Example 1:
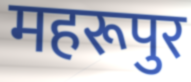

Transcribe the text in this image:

महरूपुर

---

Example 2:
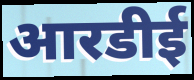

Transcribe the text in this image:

आरडीई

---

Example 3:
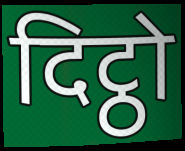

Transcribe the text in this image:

दिट्ठो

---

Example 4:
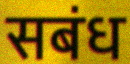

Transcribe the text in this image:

सबंध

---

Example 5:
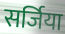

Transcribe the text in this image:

सर्जिया